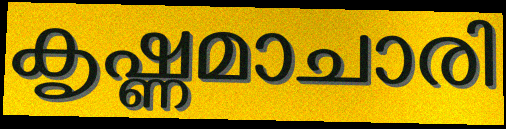
കൃഷ്ണമാചാരി